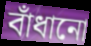
বাঁধানো